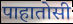
पाहातोसी